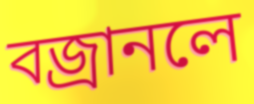
বজ্রানলে